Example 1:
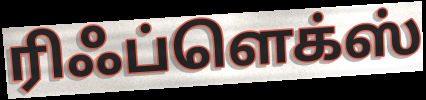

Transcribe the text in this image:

ரிஃப்ளெக்ஸ்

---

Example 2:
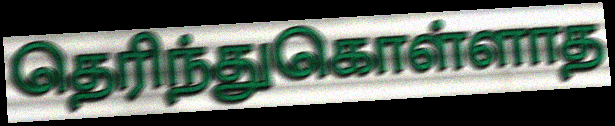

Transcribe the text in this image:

தெரிந்துகொள்ளாத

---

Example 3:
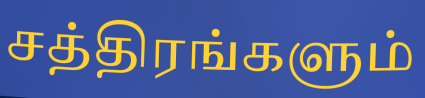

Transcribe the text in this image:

சத்திரங்களும்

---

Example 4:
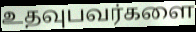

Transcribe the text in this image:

உதவுபவர்களை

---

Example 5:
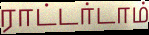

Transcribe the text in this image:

ராட்டர்டாம்